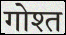
गोश्त